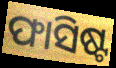
ଫାସିଷ୍ଟ